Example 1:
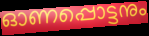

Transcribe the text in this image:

ഓണപ്പൊട്ടനും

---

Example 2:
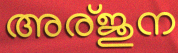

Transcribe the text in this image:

അര്ജുന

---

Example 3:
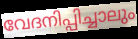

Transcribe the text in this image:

വേദനിപ്പിച്ചാലും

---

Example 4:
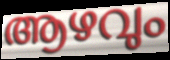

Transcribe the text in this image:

ആഴവും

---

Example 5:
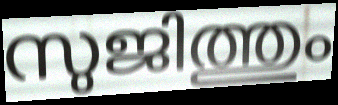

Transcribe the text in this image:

സുജിത്തും